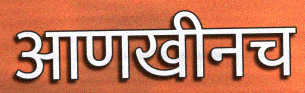
आणखीनच